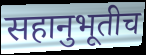
सहानुभूतीच